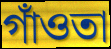
গাঁওতা